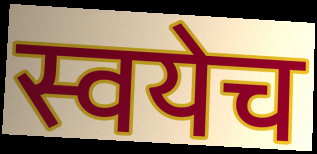
स्वयेच